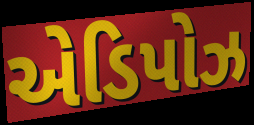
એડિપોઝ